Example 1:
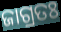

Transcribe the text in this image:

ଜାଗ୍ରତଃ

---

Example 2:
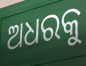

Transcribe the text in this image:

ଅଧରକୁ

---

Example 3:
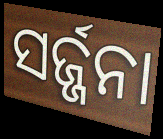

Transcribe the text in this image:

ସର୍ଜ୍ଜନା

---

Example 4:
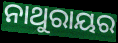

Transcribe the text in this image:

ନାଥୁରାୟର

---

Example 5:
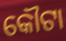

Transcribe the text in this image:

କୌଟା